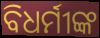
ବିଧର୍ମୀଙ୍କ